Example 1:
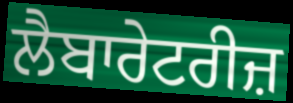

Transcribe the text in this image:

ਲੈਬਾਰੇਟਰੀਜ਼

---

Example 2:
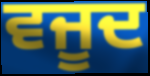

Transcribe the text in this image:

ਵਜੂਦ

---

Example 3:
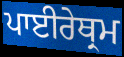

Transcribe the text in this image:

ਪਾਈਰੇਥ੍ਰਮ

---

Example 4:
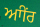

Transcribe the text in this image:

ਆੀਂਰ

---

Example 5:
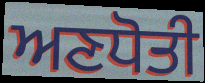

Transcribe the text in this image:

ਅਣਧੋਤੀ